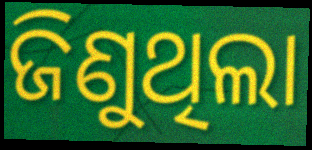
ଜିଣୁଥିଲା